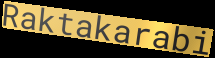
Raktakarabi